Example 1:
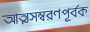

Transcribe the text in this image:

আত্মসম্বরণপূর্বক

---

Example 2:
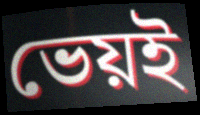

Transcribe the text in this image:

ভেয়ই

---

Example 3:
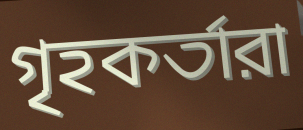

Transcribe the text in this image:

গৃহকর্তারা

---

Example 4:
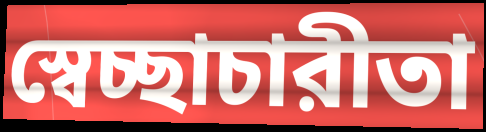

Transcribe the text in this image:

স্বেচ্ছাচারীতা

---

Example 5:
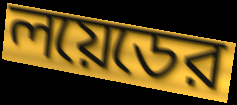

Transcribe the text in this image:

লয়েডের